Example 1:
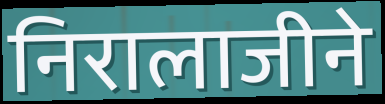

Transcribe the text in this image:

निरालाजीने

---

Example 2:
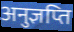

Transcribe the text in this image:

अनुज्ञप्ति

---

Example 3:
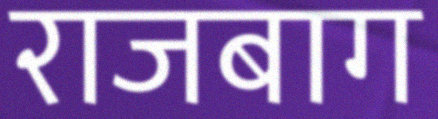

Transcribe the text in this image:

राजबाग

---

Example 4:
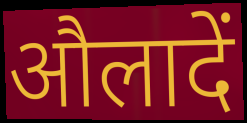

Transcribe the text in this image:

औलादें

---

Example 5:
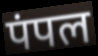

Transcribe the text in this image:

पंपल